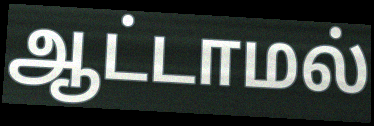
ஆட்டாமல்